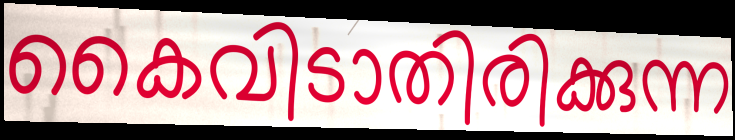
കൈവിടാതിരിക്കുന്ന